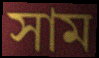
সাম